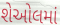
શેઓલમાં